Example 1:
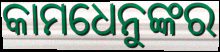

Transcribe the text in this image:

କାମଧେନୁଙ୍କର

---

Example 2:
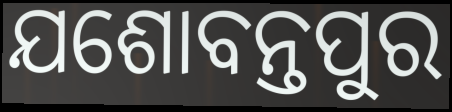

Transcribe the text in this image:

ଯଶୋବନ୍ତପୁର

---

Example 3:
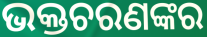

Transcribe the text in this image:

ଭକ୍ତଚରଣଙ୍କର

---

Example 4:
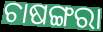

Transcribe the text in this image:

ଚାଷଙ୍ଗରା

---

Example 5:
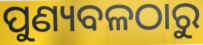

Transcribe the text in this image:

ପୁଣ୍ୟବଳଠାରୁ